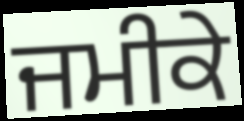
ਜਮੀਕੇ